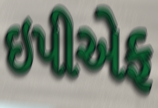
ઇપીએફ